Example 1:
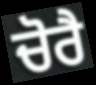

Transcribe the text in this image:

ਚੋਰੈ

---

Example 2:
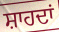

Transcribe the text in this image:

ਸ਼ਾਹਦਾਂ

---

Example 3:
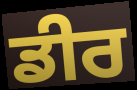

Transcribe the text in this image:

ਡੀਰ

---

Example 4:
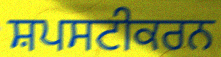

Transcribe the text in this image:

ਸ਼ਪਸਟੀਕਰਨ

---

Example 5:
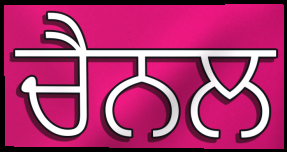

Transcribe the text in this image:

ਚੈਨਲ